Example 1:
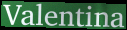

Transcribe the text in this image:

Valentina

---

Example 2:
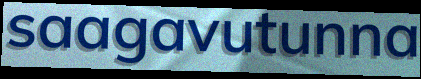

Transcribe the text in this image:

saagavutunna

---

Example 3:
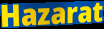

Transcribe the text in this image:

Hazarat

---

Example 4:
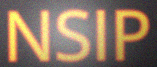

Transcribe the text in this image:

NSIP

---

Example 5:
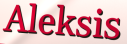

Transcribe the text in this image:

Aleksis